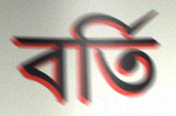
বৰ্তি